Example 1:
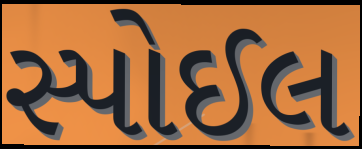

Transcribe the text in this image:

સ્પોઈલ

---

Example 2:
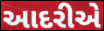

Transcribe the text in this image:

આદરીએ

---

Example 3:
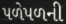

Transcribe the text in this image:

પળેપળની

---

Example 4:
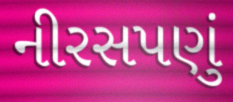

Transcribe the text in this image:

નીરસપણું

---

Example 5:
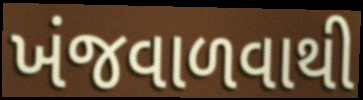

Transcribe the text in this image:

ખંજવાળવાથી